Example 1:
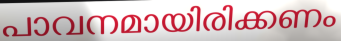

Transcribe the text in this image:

പാവനമായിരിക്കണം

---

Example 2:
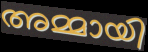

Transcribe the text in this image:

അമ്മായി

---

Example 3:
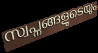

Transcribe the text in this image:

സ്വപ്നങ്ങളുടെയും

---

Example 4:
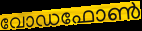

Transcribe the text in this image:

വോഡഫോൺ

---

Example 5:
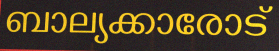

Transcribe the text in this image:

ബാല്യക്കാരോട്